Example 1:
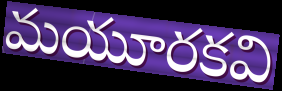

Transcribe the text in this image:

మయూరకవి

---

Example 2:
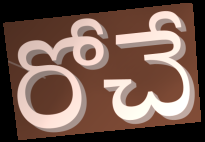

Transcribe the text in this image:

రోచే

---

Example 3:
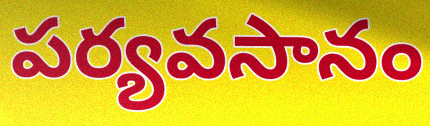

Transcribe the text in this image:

పర్యవసానం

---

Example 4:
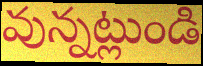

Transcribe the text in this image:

వున్నట్లుండి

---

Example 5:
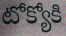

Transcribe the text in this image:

టోక్యోకి